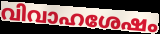
വിവാഹശേഷം